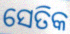
ସେତିକ